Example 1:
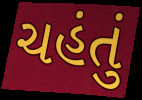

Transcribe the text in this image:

ચહંતું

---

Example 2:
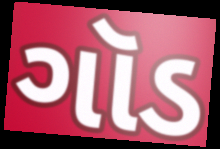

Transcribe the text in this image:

ગૉડ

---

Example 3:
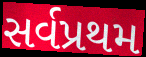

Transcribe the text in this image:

સર્વપ્રથમ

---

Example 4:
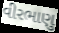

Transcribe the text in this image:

વીરભાણુ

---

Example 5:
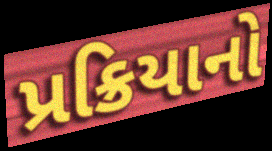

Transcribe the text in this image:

પ્રક્રિયાનો